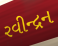
રવીન્દ્રન